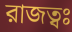
রাজত্বঃ